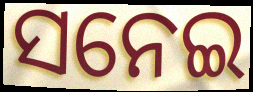
ସନେଇ